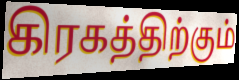
கிரகத்திற்கும்